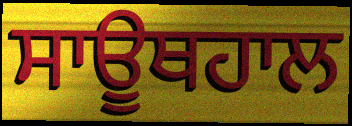
ਸਾਊਥਹਾਲ